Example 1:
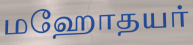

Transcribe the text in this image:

மஹோதயர்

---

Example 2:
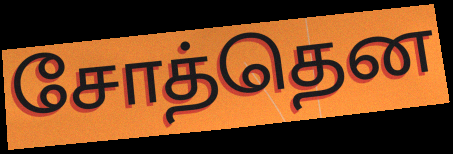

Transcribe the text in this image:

சோத்தென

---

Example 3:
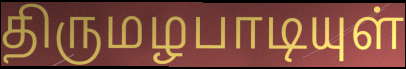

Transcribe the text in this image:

திருமழபாடியுள்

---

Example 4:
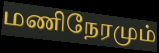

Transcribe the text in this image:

மணிநேரமும்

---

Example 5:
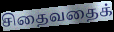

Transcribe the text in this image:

சிதைவதைக்